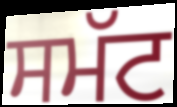
ਸਮੱਟ